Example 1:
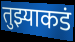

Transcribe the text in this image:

तुझ्याकडं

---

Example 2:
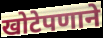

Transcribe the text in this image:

खोटेपणाने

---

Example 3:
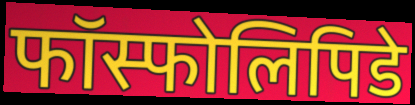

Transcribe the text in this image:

फॉस्फोलिपिडे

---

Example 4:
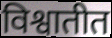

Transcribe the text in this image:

विश्वातीत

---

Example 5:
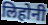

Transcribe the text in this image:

लिहोनी